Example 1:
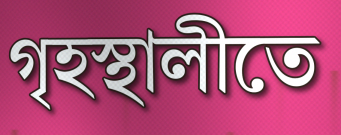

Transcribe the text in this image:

গৃহস্থালীতে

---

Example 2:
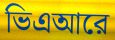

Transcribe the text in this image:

ভিএআরে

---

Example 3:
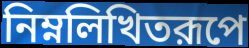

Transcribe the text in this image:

নিম্নলিখিতরূপে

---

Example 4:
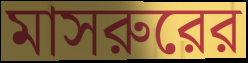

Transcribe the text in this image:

মাসরুরের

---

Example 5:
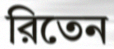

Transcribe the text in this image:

রিতেন